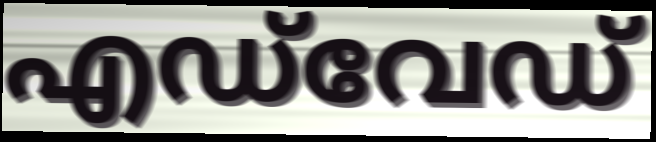
എഡ്‌വേഡ്